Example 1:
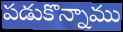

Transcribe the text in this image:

పడుకొన్నాము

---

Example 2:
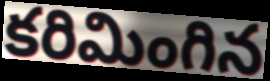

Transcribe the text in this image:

కరిమింగిన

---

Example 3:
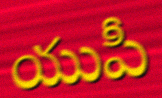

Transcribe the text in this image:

యుపీ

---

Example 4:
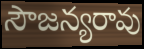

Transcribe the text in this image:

సౌజన్యరావు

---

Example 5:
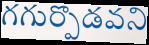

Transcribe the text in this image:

గగుర్పొడవని